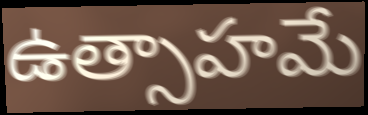
ఉత్సాహమే